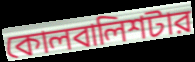
কোলবালিশটার